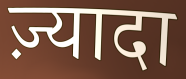
ज़्यादा